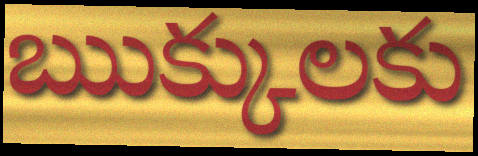
ఋక్కులకు